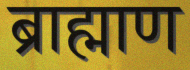
ब्राह्माण